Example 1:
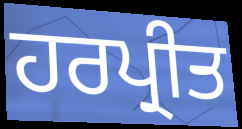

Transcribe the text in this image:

ਹਰਪ੍ਰੀਤ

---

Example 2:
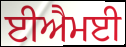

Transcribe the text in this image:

ਈਐਮਈ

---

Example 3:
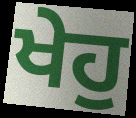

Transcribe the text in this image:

ਖੇਹੁ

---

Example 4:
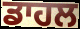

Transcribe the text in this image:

ਡਾਹਲ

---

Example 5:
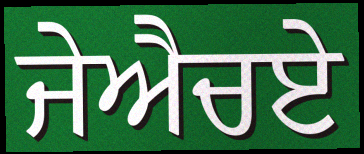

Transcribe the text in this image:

ਜੇਐਚਏ